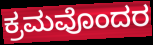
ಕ್ರಮವೊಂದರ